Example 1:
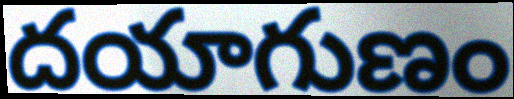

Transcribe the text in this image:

దయాగుణం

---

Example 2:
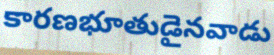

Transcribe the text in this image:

కారణభూతుడైనవాడు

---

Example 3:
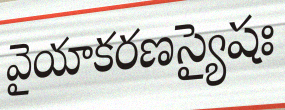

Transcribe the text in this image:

వైయాకరణస్యైషః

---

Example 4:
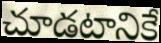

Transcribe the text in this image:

చూడటానికే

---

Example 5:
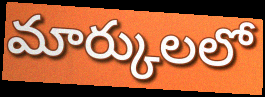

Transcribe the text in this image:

మార్కులలో